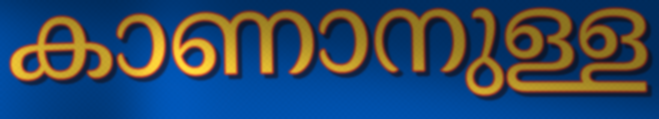
കാണാനുള്ള